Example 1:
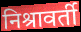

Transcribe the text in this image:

निश्रावर्ती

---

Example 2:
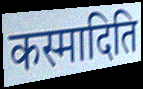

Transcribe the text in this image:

कस्मादिति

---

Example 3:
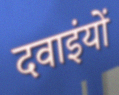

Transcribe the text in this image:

दवाइंयों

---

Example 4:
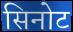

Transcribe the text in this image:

सिनोट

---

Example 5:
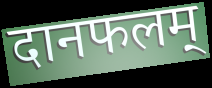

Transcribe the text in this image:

दानफलम्